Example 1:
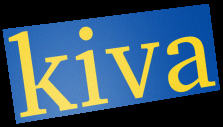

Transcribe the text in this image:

kiva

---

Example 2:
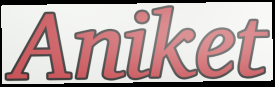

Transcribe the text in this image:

Aniket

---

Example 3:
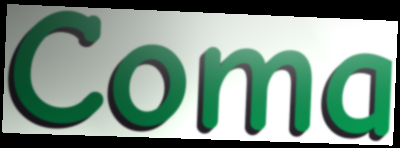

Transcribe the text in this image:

Coma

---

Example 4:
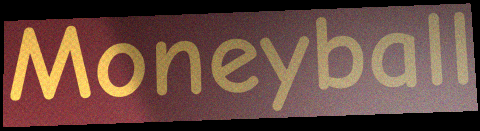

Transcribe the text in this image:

Moneyball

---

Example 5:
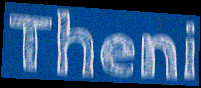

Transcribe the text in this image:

Theni